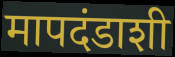
मापदंडाशी